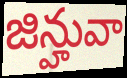
జిన్హువా